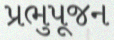
પ્રભુપૂજન